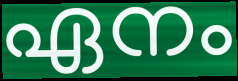
ഏനം